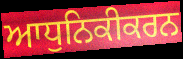
ਆਧੁਨਿਕੀਕਰਨ